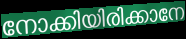
നോക്കിയിരിക്കാനേ